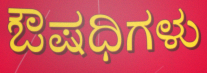
ಔಷಧಿಗಳು